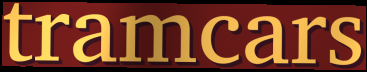
tramcars